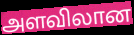
அளவிலான